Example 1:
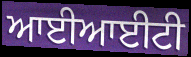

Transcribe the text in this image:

ਆਈਆਈਟੀ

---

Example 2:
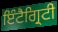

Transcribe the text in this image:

ਇੰਟੈਗ੍ਰਿਟੀ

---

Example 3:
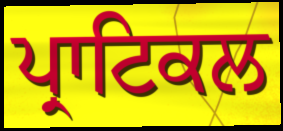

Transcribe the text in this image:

ਪ੍ਰਾਟਿਕਲ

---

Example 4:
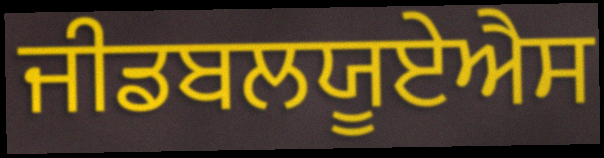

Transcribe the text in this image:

ਜੀਡਬਲਯੂਏਐਸ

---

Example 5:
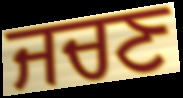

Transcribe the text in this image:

ਜਚਣ